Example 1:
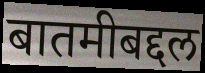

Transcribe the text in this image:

बातमीबद्दल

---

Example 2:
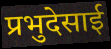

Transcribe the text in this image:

प्रभुदेसाई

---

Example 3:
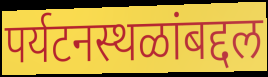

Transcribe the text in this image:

पर्यटनस्थळांबद्दल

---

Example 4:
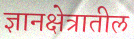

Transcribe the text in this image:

ज्ञानक्षेत्रातील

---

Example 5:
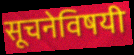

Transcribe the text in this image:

सूचनेविषयी